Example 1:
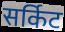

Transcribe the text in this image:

सर्किट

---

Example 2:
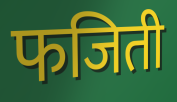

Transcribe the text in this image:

फजिती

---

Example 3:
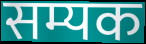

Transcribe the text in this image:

सम्यक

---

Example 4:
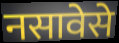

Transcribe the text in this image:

नसावेसे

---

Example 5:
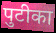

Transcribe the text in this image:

पुटीका